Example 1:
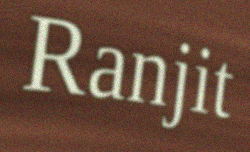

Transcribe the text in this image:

Ranjit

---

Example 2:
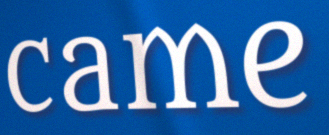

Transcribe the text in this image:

came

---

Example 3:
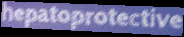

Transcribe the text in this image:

hepatoprotective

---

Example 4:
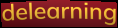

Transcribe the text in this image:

delearning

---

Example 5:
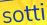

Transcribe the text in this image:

sotti